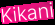
Kikani